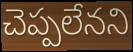
చెప్పలేనని